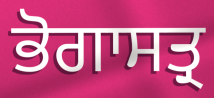
ਭੋਗਾਸਤ੍ਰ